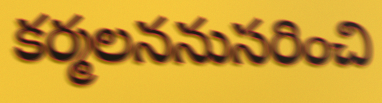
కర్మలననుసరించి